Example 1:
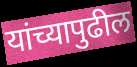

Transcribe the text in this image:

यांच्यापुढील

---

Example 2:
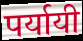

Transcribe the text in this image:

पर्यायी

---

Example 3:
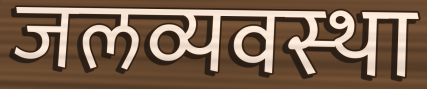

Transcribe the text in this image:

जलव्यवस्था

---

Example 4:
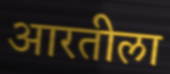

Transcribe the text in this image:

आरतीला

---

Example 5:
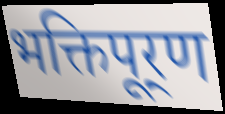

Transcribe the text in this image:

भक्तिपूर्ण